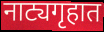
नाट्यगृहात